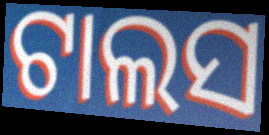
ଟାଲସ